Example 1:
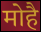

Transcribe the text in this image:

मोहै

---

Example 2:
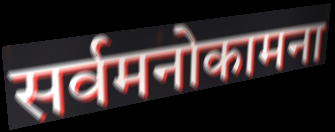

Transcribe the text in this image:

सर्वमनोकामना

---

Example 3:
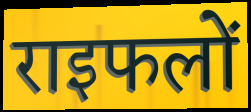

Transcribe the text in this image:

राइफलों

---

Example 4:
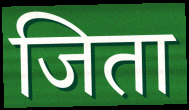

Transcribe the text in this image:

जिता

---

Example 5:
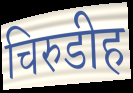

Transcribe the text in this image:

चिरुडीह